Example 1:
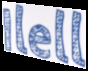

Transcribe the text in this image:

Ilell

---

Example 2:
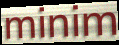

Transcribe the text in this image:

minim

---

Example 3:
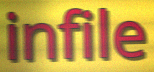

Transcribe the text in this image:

infile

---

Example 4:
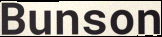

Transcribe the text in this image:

Bunson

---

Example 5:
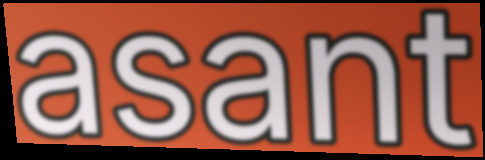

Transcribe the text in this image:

asant